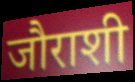
जौराशी